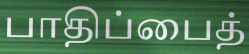
பாதிப்பைத்